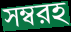
সম্বরহ